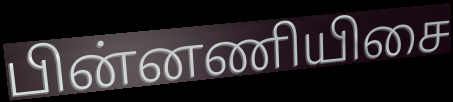
பின்னணியிசை